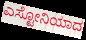
ಎಸ್ಟೋನಿಯಾದ